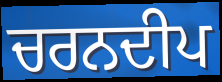
ਚਰਨਦੀਪ